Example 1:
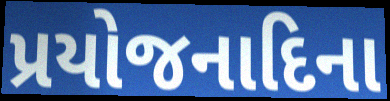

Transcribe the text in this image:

પ્રયોજનાદિના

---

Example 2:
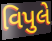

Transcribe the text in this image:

વિપુલે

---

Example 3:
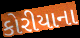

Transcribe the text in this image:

કોરીયાના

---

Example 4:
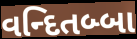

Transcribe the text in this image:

વન્દિતબ્બા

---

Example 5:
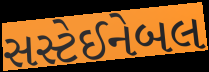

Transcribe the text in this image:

સસ્ટેઈનેબલ